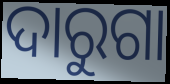
ଦାରୁଗା